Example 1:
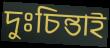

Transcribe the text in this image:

দুঃচিন্তাই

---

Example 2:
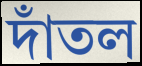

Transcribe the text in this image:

দাঁতল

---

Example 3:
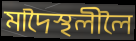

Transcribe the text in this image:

মাদৈস্থলীলৈ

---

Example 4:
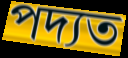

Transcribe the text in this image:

পদ্যত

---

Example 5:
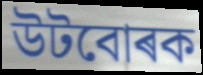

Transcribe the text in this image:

উটবোৰক